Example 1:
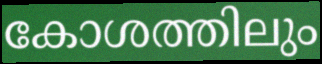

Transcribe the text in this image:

കോശത്തിലും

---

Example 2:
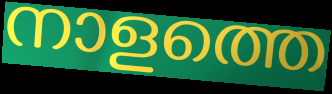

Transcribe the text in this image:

നാളത്തെ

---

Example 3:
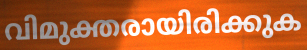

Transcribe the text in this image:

വിമുക്തരായിരിക്കുക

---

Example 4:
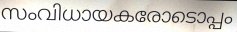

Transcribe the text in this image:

സംവിധായകരോടൊപ്പം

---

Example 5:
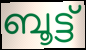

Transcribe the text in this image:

ബൂട്ട്